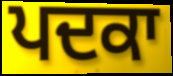
ਪਦਕਾ